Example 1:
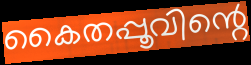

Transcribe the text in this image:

കൈതപ്പൂവിന്റെ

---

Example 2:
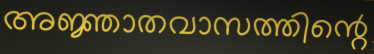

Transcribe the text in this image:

അജ്ഞാതവാസത്തിന്റെ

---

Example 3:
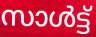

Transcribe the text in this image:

സാൾട്ട്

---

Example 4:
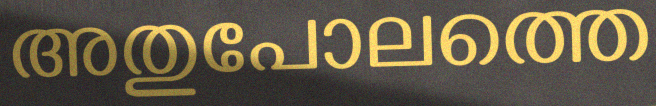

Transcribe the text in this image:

അതുപോലത്തെ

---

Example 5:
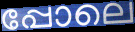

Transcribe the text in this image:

പ്പോലെ